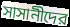
সাসানীদের